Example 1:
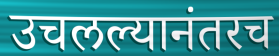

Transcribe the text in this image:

उचलल्यानंतरच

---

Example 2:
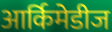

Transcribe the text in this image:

आर्किमेडीज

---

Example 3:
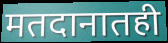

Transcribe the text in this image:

मतदानातही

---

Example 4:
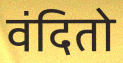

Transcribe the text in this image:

वंदितो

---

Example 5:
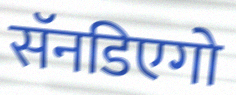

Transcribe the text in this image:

सॅनडिएगो